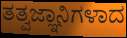
ತತ್ವಜ್ಞಾನಿಗಳಾದ